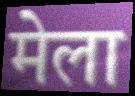
मेला